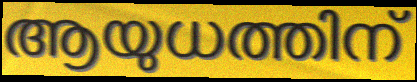
ആയുധത്തിന്